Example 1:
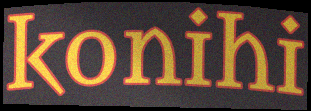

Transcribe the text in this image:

konihi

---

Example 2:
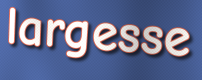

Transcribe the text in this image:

largesse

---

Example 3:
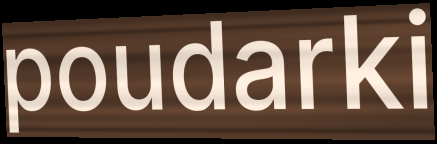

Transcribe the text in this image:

poudarki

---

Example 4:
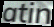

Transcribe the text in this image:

atin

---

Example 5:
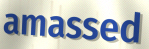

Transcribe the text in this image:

amassed